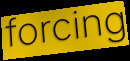
forcing